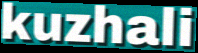
kuzhali